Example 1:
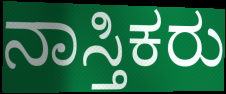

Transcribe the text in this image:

ನಾಸ್ತಿಕರು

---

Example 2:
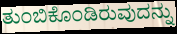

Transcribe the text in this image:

ತುಂಬಿಕೊಂಡಿರುವುದನ್ನು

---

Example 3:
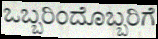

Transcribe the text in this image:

ಒಬ್ಬರಿಂದೊಬ್ಬರಿಗೆ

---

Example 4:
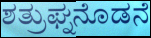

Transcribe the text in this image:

ಶತ್ರುಘ್ನನೊಡನೆ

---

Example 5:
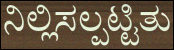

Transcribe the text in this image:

ನಿಲ್ಲಿಸಲ್ಪಟ್ಟಿತು